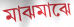
মাঝমাঝে